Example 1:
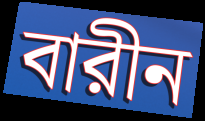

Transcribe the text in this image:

বারীন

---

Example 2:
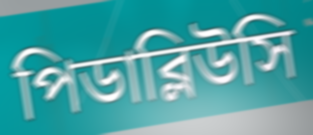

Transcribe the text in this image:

পিডাব্লিউসি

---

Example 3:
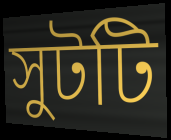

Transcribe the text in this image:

সুটটি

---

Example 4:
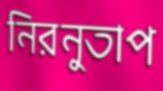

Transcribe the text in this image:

নিরনুতাপ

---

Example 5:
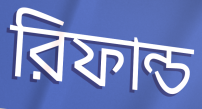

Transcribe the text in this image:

রিফান্ড